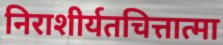
निराशीर्यतचित्तात्मा